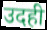
उदही